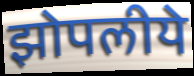
झोपलीये